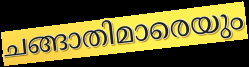
ചങ്ങാതിമാരെയും